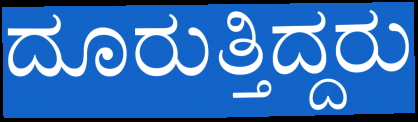
ದೂರುತ್ತಿದ್ದರು